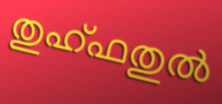
തുഹ്ഫതുൽ